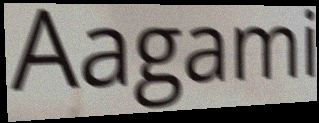
Aagami